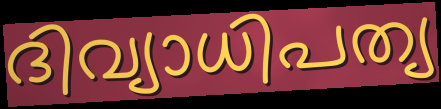
ദിവ്യാധിപത്യ